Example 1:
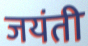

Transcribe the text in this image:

जयंती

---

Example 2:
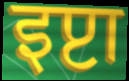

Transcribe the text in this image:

इप्टा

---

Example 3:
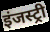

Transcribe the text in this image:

इंजस्ट्री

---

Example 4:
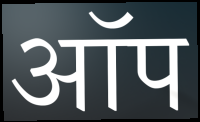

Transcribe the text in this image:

ऑप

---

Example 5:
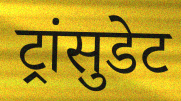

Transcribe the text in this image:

ट्रांसुडेट